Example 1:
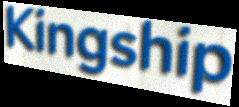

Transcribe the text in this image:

Kingship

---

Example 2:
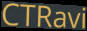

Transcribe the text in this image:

CTRavi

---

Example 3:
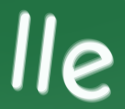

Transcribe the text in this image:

lle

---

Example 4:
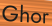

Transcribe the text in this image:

Ghor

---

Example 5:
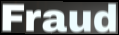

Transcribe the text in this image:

Fraud